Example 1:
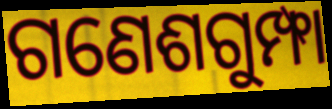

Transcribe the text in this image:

ଗଣେଶଗୁମ୍ଫା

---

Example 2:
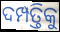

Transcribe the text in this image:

ଦମ୍ପତ୍ତିକୁ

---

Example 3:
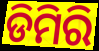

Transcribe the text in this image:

ଡିମିରି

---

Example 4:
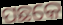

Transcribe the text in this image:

ପଛକେ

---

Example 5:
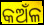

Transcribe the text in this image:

କଅଁଳ